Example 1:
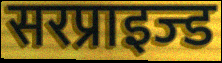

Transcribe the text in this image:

सरप्राइज्ड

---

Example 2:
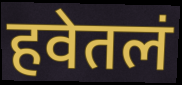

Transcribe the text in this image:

हवेतलं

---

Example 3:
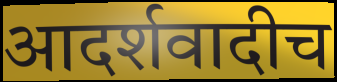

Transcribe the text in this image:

आदर्शवादीच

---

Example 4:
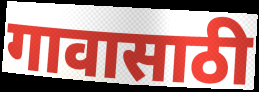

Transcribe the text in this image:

गावासाठी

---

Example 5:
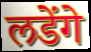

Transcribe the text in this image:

लडेंगे